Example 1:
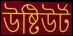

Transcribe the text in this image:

উষ্টিউৰ্ট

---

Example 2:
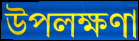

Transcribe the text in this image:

উপলক্ষণা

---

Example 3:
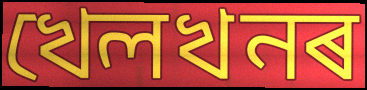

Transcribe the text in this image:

খেলখনৰ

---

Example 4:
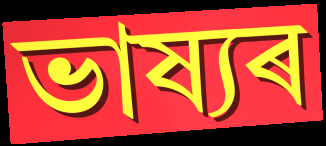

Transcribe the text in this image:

ভাষ্যৰ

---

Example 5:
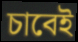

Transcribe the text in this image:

চাবেই